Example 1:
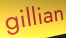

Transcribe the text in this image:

gillian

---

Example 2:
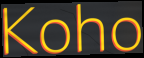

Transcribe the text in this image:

Koho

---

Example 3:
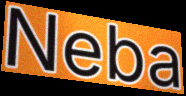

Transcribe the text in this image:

Neba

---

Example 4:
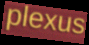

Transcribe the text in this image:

plexus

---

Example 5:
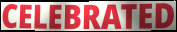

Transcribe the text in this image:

CELEBRATED